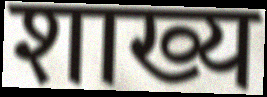
शाख्य